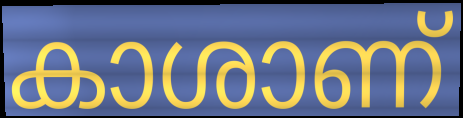
കാശാണ്